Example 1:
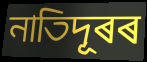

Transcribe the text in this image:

নাতিদূৰৰ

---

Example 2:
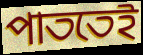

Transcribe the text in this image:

পাততেই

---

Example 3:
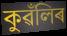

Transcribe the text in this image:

কুৱঁলিৰ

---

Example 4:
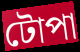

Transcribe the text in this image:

টোপা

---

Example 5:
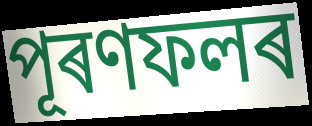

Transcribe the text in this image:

পূৰণফলৰ